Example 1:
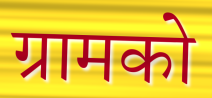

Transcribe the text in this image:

ग्रामको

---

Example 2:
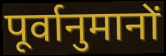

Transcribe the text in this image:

पूर्वानुमानों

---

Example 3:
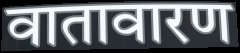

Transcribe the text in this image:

वातावारण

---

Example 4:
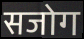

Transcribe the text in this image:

सजोग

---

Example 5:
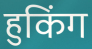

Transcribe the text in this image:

हुकिंग